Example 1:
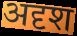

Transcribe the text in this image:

अदृश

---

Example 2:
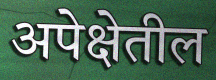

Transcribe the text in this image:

अपेक्षेतील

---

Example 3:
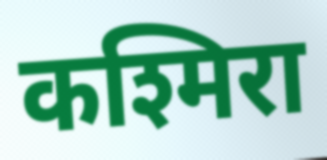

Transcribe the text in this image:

कश्मिरा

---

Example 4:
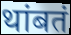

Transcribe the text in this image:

थांबतं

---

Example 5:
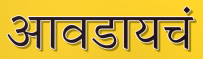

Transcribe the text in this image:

आवडायचं